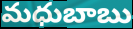
మధుబాబు